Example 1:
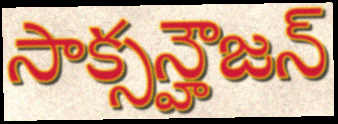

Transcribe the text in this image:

సాక్సన్హౌజన్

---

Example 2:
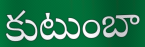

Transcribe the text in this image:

కుటుంబా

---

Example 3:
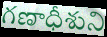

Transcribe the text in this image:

గణాధీశుని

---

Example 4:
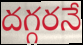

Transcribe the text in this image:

దగ్గరనే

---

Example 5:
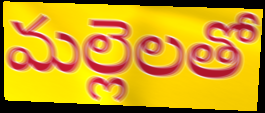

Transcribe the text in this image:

మల్లెలతో